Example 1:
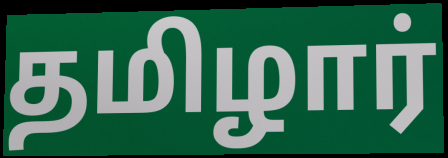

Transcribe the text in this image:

தமிழார்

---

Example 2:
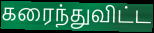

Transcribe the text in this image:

கரைந்துவிட்ட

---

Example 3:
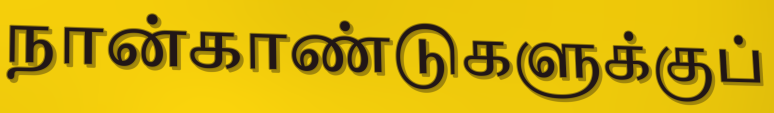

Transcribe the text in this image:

நான்காண்டுகளுக்குப்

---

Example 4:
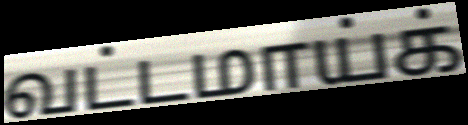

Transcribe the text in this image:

வட்டமாய்க்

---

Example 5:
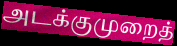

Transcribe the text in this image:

அடக்குமுறைத்